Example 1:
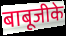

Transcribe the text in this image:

बाबूजीके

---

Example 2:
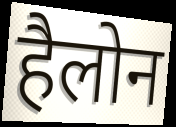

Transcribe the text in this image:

हैलोन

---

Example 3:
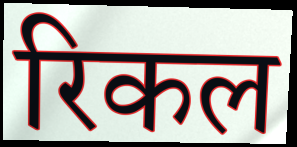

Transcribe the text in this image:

रिकल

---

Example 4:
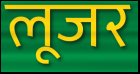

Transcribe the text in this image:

लूजर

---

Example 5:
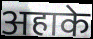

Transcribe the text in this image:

अहाके